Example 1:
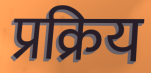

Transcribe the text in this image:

प्रक्रिय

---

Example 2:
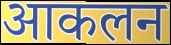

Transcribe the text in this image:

आकलन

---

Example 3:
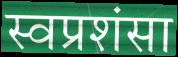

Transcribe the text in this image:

स्वप्रशंसा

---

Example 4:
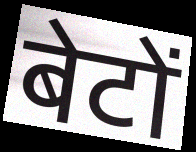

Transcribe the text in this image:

बेटों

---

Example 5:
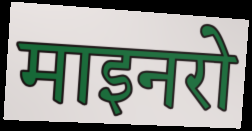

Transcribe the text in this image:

माइनरो